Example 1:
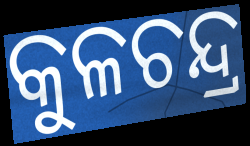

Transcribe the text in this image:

କୁଳଚନ୍ଦ୍ର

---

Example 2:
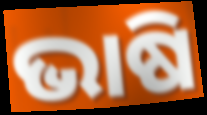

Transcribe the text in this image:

ଭାଷି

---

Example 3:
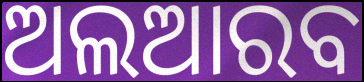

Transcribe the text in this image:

ଅଲଆରବ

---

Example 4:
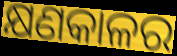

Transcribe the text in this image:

କ୍ଷଣକାଳର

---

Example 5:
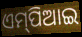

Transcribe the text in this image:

ଏମ୍‌ପିଆଇ